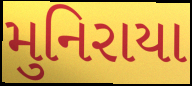
મુનિરાયા